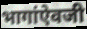
भागांऐवजी